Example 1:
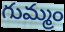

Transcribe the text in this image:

గుమ్మం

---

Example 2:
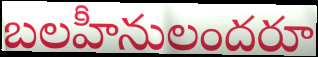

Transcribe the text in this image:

బలహీనులందరూ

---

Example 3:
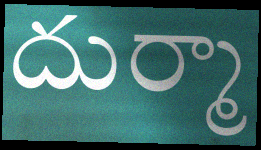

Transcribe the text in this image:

దుర్మా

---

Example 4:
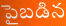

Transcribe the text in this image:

పైబడిన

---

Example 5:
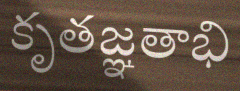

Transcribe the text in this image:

కృతజ్ఞతాభి